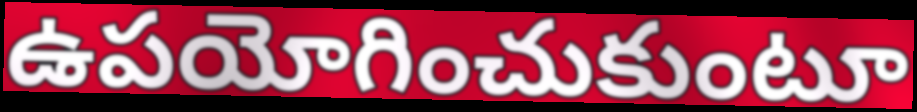
ఉపయోగించుకుంటూ